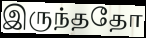
இருந்ததோ